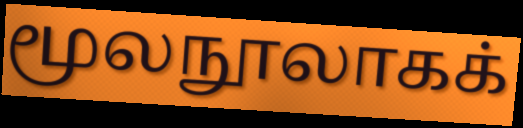
மூலநூலாகக்